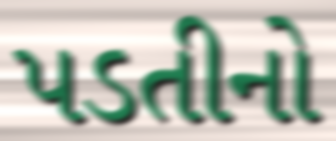
પડતીનો